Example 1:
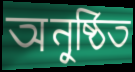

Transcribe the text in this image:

অনুষ্ঠিত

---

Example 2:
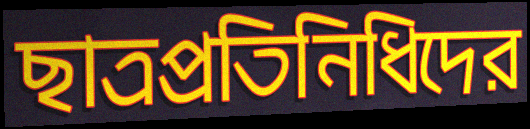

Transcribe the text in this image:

ছাত্রপ্রতিনিধিদের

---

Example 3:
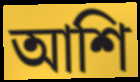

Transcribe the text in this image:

আশি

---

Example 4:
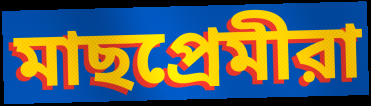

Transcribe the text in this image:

মাছপ্রেমীরা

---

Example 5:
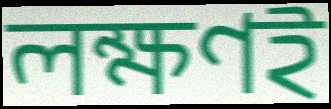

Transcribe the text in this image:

লক্ষণই